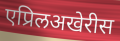
एप्रिलअखेरीस